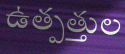
ఉత్పత్తుల